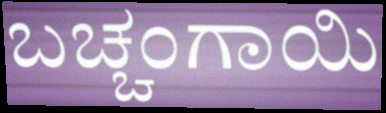
ಬಚ್ಚಂಗಾಯಿ